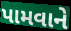
પામવાને